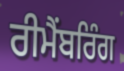
ਰੀਮੈਂਬਰਿੰਗ